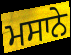
ਮਸਾਨੇ